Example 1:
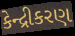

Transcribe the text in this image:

કેન્દ્રીકરણ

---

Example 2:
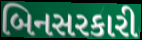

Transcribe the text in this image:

બિનસરકારી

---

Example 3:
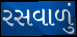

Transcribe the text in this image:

રસવાળું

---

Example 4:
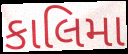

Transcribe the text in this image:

કાલિમા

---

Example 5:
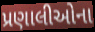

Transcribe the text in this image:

પ્રણાલીઓના